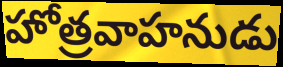
హోత్రవాహనుడు